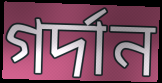
গর্দান